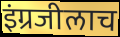
इंग्रजीलाच